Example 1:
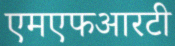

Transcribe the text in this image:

एमएफआरटी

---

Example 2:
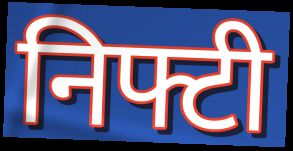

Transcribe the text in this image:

निफ्टी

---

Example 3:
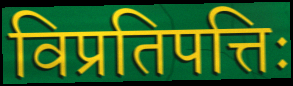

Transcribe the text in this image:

विप्रतिपत्तिः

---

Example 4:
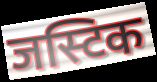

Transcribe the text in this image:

जस्टिक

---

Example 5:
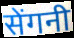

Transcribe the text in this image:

सेंगनी